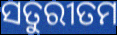
ସତୁରୀତମ